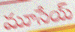
మూసేయ్